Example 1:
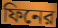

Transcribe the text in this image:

ফিনের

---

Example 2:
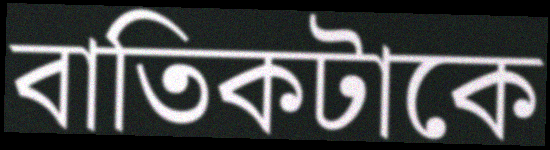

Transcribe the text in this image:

বাতিকটাকে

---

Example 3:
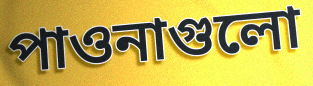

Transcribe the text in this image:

পাওনাগুলো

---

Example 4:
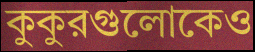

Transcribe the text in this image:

কুকুরগুলোকেও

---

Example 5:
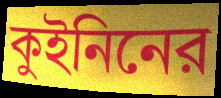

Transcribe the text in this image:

কুইনিনের